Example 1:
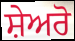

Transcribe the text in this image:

ਸ਼ੇਅਰੋ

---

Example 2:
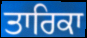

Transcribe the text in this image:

ਤਾਰਿਕਾ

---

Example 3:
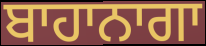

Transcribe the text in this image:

ਬਾਹਾਨਾਗਾ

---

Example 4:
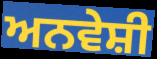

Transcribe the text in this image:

ਅਨਵੇਸ਼ੀ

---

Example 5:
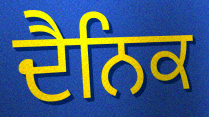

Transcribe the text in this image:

ਦੈਨਿਕ